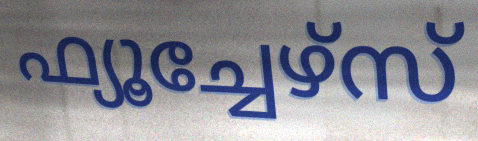
ഫ്യൂച്ചേഴ്സ്